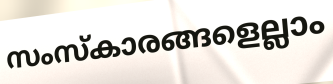
സംസ്കാരങ്ങളെല്ലാം